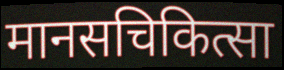
मानसचिकित्सा